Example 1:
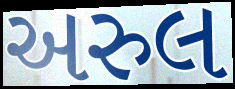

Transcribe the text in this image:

અરુલ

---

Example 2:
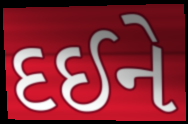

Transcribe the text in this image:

દઈને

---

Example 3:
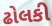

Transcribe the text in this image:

ઢોલકી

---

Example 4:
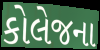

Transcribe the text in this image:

કોલેજના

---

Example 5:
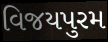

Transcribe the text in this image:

વિજયપુરમ